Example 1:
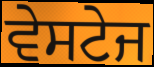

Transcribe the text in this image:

ਵੇਸਟੇਜ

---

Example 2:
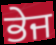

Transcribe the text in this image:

ਭੇਜ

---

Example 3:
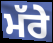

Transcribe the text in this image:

ਮੱਰੇ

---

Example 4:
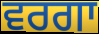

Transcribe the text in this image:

ਵਰਗਾ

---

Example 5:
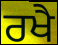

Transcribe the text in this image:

ਰਖੈ